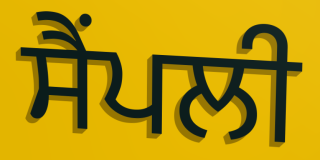
ਸੈਂਪਲੀ